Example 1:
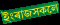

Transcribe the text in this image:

ইংৰাজসকলে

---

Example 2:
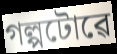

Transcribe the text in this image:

গল্পটোৱে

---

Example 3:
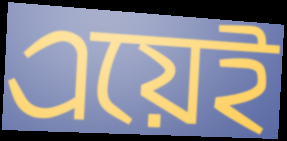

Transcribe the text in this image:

এয়েই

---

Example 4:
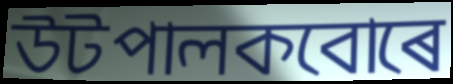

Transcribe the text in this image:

উটপালকবোৰে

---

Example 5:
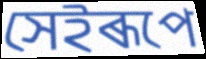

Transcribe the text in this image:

সেইৰূপে